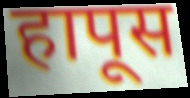
हापूस